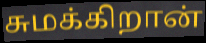
சுமக்கிறான்